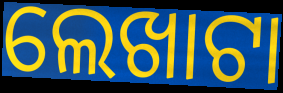
ଲେଖାଟା